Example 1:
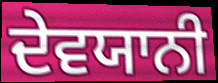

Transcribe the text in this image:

ਦੇਵਯਾਨੀ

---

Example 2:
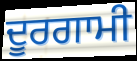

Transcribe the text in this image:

ਦੂਰਗਾਮੀ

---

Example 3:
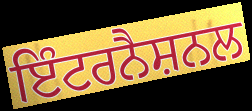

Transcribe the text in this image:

ਇੰਟਰਨੈਸ਼ਨਲ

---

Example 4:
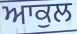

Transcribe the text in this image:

ਆਕੁਲ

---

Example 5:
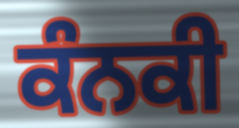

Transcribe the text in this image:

ਕੰਨਕੀ